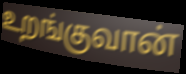
உறங்குவான்